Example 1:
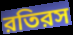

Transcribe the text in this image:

রতিরস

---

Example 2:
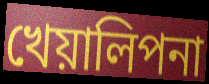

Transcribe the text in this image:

খেয়ালিপনা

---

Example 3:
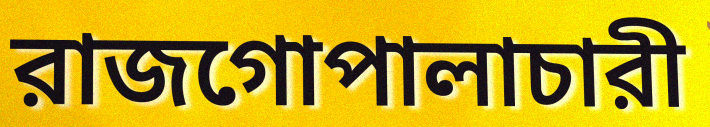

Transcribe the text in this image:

রাজগোপালাচারী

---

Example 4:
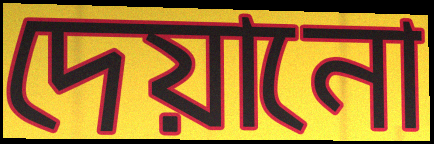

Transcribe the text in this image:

দেয়ানো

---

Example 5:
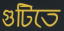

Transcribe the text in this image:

গুটিতে